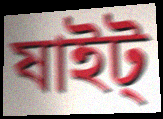
ষাইট্